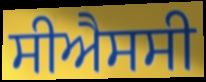
ਸੀਐਸਸੀ